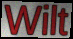
Wilt